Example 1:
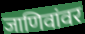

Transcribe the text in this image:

जाणिवांवर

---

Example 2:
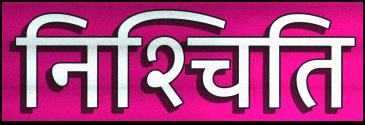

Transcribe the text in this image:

निश्चिति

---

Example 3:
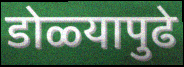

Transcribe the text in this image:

डोळ्यापुढे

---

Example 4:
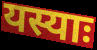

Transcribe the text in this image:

यस्याः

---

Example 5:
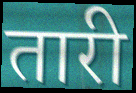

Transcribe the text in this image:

तारी